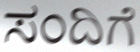
ಸಂದಿಗೆ